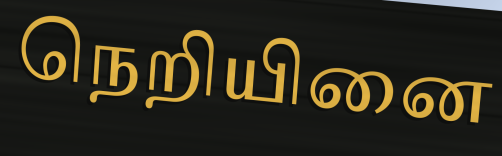
நெறியினை